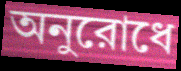
অনুরোধে